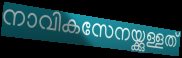
നാവികസേനയ്ക്കുള്ളത്